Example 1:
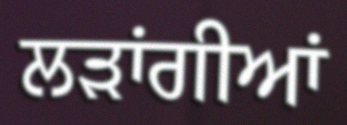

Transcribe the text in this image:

ਲੜਾਂਗੀਆਂ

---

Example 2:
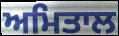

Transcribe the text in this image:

ਅਮਿਤਾਲ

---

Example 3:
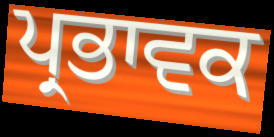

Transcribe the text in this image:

ਪ੍ਰਭਾਵਕ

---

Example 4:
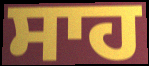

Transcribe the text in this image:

ਸਾਹ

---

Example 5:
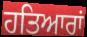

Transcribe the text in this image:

ਹਤਿਆਰਾਂ